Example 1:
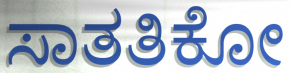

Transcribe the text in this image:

ಸಾತತಿಕೋ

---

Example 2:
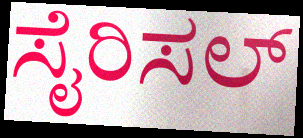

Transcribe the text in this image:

ಸೈರಿಸಲ್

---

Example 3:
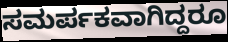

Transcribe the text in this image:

ಸಮರ್ಪಕವಾಗಿದ್ದರೂ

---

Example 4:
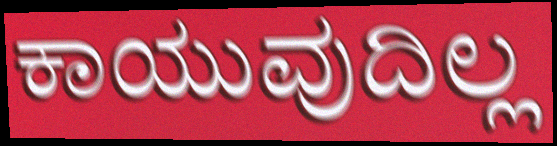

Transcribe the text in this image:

ಕಾಯುವುದಿಲ್ಲ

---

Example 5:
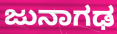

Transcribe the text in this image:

ಜುನಾಗಢ